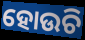
ହୋଉଚି